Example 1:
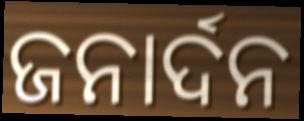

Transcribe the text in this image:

ଜନାର୍ଦନ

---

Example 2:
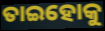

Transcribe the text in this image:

ତାଇହୋକୁ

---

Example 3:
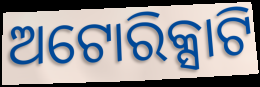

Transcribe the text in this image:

ଅଟୋରିକ୍ସାଟି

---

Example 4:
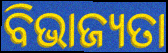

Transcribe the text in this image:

ବିଭାଜ୍ୟତା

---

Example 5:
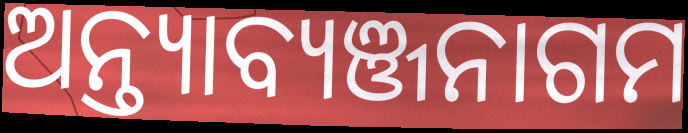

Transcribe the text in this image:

ଅନ୍ତ୍ୟାବ୍ୟଞ୍ଜନାଗମ